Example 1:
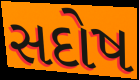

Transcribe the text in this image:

સદોષ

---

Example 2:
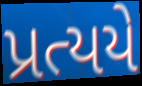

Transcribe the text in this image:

પ્રત્યયે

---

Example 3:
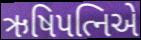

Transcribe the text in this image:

ઋષિપત્નિએ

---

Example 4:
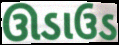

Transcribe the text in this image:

ઊડાઉડ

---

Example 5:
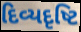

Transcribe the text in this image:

દિવ્યદૃષ્ટિ